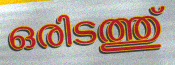
ഒരിടത്തു്